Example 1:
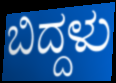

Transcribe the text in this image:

ಬಿದ್ದಳು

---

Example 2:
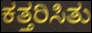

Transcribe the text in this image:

ಕತ್ತರಿಸಿತು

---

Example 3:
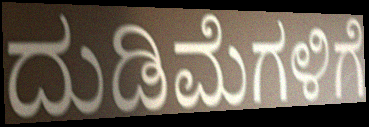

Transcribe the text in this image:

ದುಡಿಮೆಗಳಿಗೆ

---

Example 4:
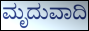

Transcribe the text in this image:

ಮೃದುವಾದಿ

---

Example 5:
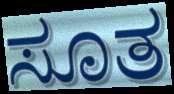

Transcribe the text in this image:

ಸೂತ